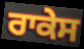
ਰਾਕੇਸ